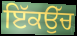
ਇੱਕਉੱਚ